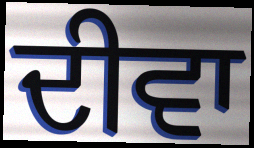
ਦੀਵਾ